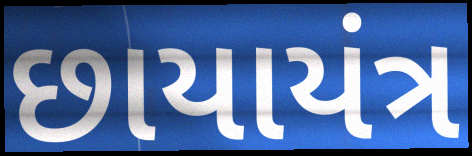
છાયાયંત્ર